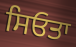
ਸਿਓਤਾ